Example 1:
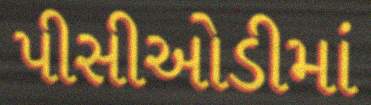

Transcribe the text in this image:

પીસીઓડીમાં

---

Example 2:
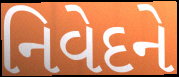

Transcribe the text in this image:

નિવેદને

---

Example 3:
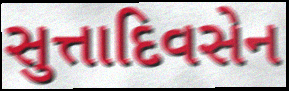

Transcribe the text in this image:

સુત્તાદિવસેન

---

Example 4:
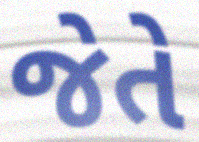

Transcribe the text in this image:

જેતે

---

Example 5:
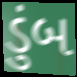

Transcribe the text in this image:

ડુંબ